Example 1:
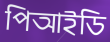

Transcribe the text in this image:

পিআইডি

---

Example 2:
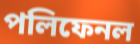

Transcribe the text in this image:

পলিফেনল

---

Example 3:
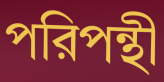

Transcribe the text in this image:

পরিপন্থী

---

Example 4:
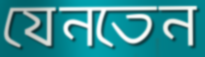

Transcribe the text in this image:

যেনতেন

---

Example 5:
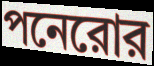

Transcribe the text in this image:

পনেরোর